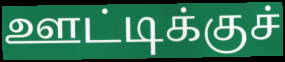
ஊட்டிக்குச்